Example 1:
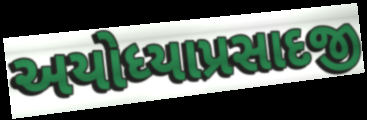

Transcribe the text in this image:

અયોધ્યાપ્રસાદજી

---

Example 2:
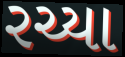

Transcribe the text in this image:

રચ્યા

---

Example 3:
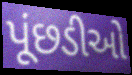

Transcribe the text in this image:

પૂંછડીઓ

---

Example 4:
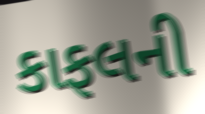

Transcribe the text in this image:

કાફલની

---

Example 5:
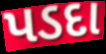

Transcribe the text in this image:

પડદા